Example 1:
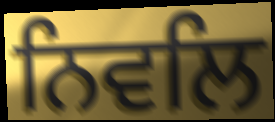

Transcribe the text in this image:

ਨਿਵਲਿ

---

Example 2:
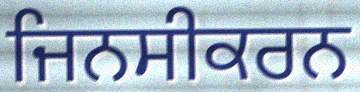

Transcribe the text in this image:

ਜਿਨਸੀਕਰਨ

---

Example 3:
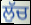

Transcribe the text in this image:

ਲੁੱਚ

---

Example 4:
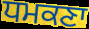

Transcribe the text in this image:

ਧਮਕਣਾ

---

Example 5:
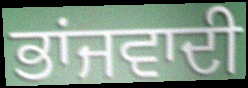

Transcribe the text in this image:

ਭਾਂਜਵਾਦੀ